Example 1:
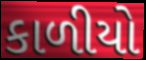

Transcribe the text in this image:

કાળીયો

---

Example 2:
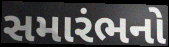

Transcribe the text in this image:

સમારંભનો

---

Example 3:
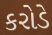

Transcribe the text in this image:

કરોડે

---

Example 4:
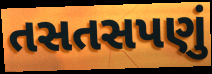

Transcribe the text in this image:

તસતસપણું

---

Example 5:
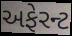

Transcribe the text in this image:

અફેરન્ટ